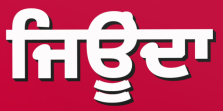
ਜਿਊੂਂਦਾ